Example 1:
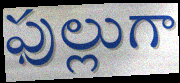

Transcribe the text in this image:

ఫుల్లుగా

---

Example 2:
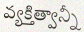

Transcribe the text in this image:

వ్యక్తిత్వాన్నీ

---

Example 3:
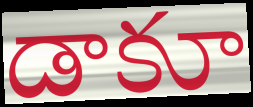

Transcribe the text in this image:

డాకూ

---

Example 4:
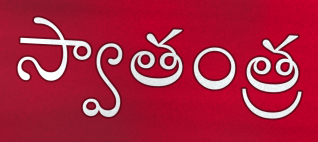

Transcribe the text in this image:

స్వాతంత్ర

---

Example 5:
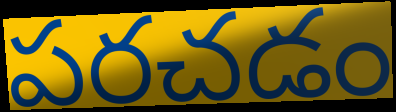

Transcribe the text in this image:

పరచడం